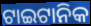
ଟାଇଟାନିକ